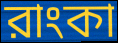
রাংকা